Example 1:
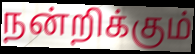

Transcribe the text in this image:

நன்றிக்கும்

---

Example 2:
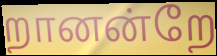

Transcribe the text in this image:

றானன்றே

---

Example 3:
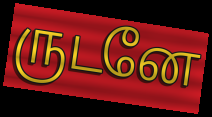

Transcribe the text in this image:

ருடனே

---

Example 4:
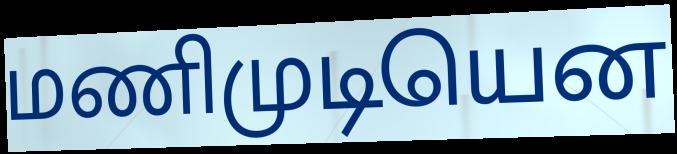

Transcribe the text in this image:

மணிமுடியென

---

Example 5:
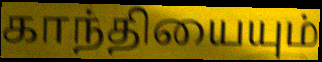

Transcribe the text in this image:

காந்தியையும்